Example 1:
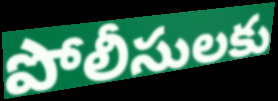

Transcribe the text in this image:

పోలీసులకు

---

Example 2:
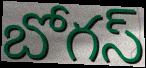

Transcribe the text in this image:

బోగస్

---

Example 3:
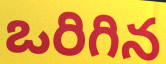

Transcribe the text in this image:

ఒరిగిన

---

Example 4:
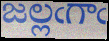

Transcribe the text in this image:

జల్లఁగాఁ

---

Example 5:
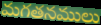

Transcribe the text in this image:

మగతనములు